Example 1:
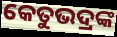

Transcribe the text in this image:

କେତୁଭଦ୍ରଙ୍କ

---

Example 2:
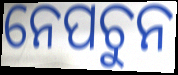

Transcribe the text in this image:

ନେପଚୁନ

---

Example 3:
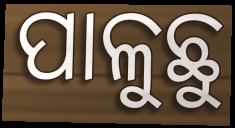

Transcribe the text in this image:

ପାଳୁଛୁ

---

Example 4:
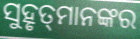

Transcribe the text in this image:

ସୁହୃତ୍‌ମାନଙ୍କର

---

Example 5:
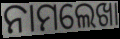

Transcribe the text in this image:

ନାମଲେଖା